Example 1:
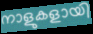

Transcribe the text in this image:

നാളുകളായി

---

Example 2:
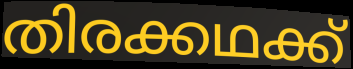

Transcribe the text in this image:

തിരക്കഥക്ക്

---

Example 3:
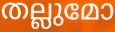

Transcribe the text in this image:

തല്ലുമോ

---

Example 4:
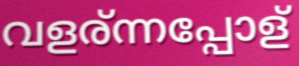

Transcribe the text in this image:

വളര്ന്നപ്പോള്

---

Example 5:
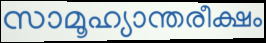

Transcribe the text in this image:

സാമൂഹ്യാന്തരീക്ഷം